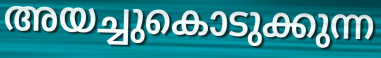
അയച്ചുകൊടുക്കുന്ന